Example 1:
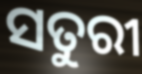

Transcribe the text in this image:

ସତୁରୀ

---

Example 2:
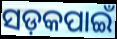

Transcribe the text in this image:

ସଡ଼କପାଇଁ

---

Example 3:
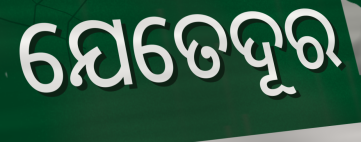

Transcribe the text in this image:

ଯେତେଦୂର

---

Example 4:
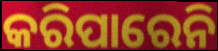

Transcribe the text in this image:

କରିପାରେନି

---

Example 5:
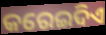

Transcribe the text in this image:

କରେଇଦିଏ